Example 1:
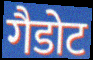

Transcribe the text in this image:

गैडोट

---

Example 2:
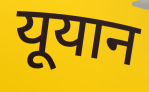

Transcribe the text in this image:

यूयान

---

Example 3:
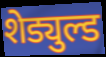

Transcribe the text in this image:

शेड्युल्ड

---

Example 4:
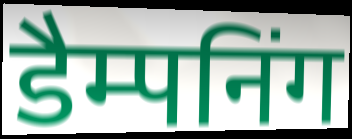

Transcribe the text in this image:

डैम्पनिंग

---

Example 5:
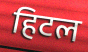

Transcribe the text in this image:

हिटल